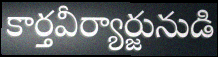
కార్తవీర్యార్జునుడి